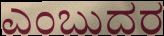
ಎಂಬುದರ